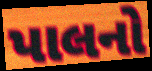
પાલનો